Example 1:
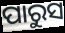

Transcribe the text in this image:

ପାରୁସ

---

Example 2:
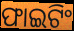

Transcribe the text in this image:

ଫାଇଟିଂ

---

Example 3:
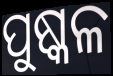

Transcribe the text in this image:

ପୁଷ୍କଳ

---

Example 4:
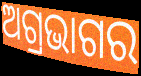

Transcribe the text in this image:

ଅଗ୍ରଭାଗର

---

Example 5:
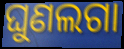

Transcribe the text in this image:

ଘୁଣଲଗା